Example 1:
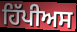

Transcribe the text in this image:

ਹਿੱਪੀਅਸ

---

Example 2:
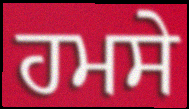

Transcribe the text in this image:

ਹਮਸੇ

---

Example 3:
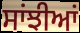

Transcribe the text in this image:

ਸਾਂਝੀਆਂ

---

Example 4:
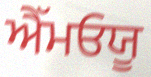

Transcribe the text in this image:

ਐੱਮਓਯੂ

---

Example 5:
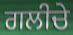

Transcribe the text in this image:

ਗਲੀਚੇ